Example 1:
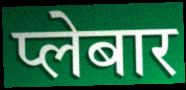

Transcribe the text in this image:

प्लेबार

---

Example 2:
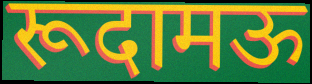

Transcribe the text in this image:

रूदामऊ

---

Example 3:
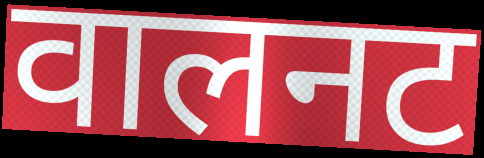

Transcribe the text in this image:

वालनट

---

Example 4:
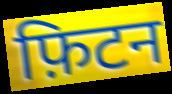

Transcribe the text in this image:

फ़िटन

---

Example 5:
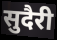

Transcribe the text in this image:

सुदैरी